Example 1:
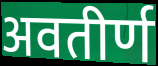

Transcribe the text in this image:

अवतीर्ण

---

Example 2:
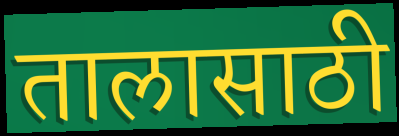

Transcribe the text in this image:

तालासाठी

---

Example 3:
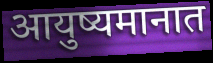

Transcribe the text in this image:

आयुष्यमानात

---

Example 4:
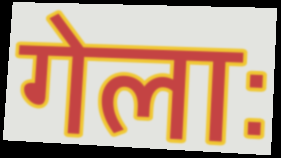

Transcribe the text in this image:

गेलाः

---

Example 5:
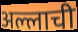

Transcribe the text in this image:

अल्लाची